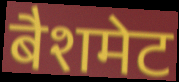
बैशमेट